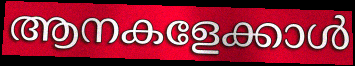
ആനകളേക്കാൾ